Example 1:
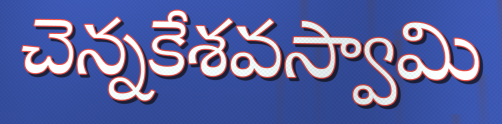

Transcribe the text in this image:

చెన్నకేశవస్వామి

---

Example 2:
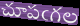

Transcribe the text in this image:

చూపఁగల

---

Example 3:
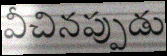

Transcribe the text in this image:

వీచినప్పుడు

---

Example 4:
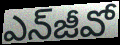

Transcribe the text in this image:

ఎన్‌జీవో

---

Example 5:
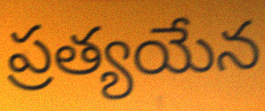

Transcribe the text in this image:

ప్రత్యయేన